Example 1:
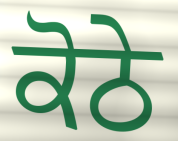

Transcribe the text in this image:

ਕੋਠੇ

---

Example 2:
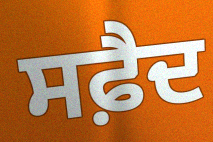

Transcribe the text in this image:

ਸਫ਼ੈਦ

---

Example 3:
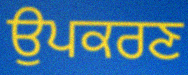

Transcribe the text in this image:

ਉਪਕਰਣ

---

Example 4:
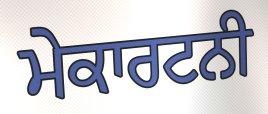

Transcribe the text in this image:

ਮੇਕਾਰਟਨੀ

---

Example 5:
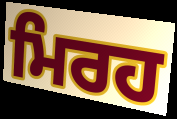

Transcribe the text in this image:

ਮਿਰਹ